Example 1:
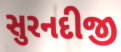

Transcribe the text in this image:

સુરનદીજી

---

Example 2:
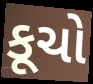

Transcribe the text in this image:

કૂચો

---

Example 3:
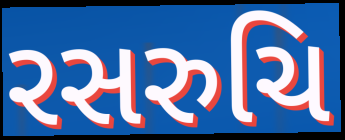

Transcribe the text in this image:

રસરુચિ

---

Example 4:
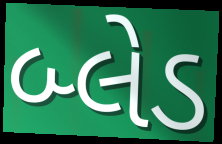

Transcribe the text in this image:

બ્લેડ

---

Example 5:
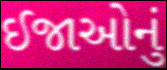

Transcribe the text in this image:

ઈજાઓનું